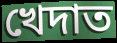
খেদাত